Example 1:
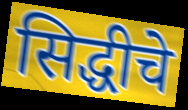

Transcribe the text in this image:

सिद्धीचे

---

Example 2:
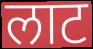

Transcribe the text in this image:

लाट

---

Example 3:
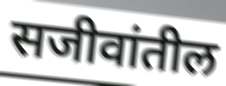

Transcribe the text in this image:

सजीवांतील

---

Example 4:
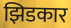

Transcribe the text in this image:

झिडकार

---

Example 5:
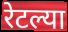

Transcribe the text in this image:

रेटल्या